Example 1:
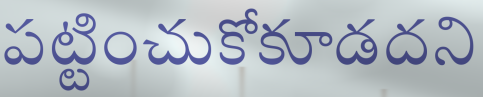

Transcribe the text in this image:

పట్టించుకోకూడదని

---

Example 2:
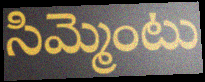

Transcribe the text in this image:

సిమ్మెంటు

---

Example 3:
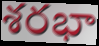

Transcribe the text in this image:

శరభా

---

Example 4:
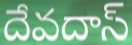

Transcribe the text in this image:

దేవదాస్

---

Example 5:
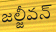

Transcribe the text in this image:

జల్జీవన్